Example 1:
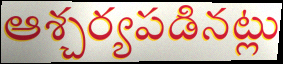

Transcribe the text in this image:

ఆశ్చర్యపడినట్లు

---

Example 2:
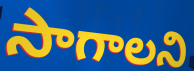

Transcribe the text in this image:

సాగాలని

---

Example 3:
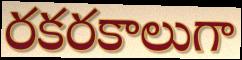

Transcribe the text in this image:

రకరకాలుగా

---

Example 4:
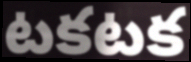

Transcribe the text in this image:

టకటక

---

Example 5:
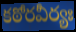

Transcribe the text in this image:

కఠోరవీర్యః